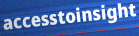
accesstoinsight